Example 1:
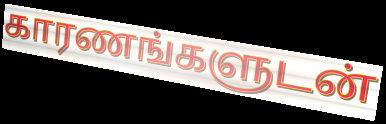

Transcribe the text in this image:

காரணங்களுடன்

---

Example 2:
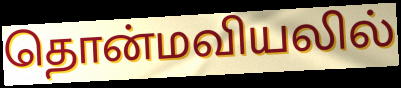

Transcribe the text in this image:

தொன்மவியலில்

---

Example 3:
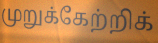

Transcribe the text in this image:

முறுக்கேற்றிக்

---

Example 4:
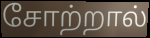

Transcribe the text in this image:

சோற்றால்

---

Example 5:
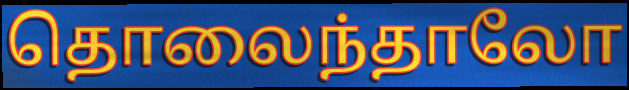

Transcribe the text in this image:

தொலைந்தாலோ